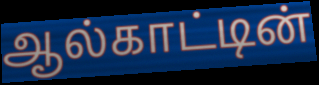
ஆல்காட்டின்